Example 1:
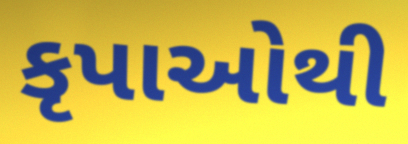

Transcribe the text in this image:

કૃપાઓથી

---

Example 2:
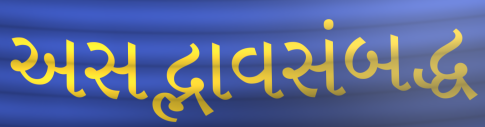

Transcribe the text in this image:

અસદ્ભાવસંબદ્ધ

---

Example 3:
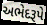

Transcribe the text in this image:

અભેદરૂપે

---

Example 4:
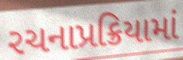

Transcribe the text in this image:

રચનાપ્રક્રિયામાં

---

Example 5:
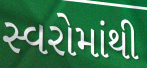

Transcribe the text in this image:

સ્વરોમાંથી